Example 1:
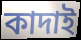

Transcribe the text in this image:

কাদাই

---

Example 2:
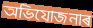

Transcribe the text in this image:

অভিযোজনাৰ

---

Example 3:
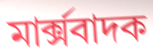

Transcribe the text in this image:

মাৰ্ক্সবাদক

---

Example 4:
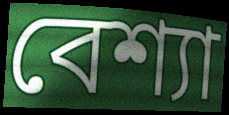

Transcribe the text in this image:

বেশ্যা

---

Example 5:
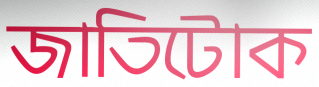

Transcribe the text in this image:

জাতিটোক